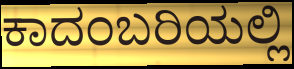
ಕಾದಂಬರಿಯಲ್ಲಿ